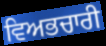
ਵਿਅਭਚਾਰੀ